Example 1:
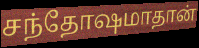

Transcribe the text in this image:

சந்தோஷமாதான்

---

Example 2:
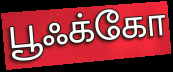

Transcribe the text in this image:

பூஃக்கோ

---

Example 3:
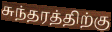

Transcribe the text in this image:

சுந்தரத்திற்கு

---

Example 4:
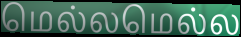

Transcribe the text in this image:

மெல்லமெல்ல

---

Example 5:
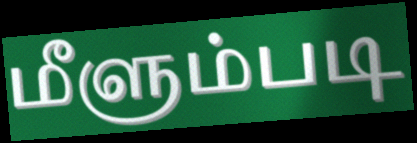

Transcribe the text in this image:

மீளும்படி